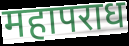
महापराध